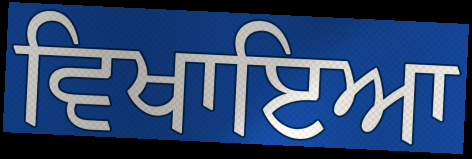
ਵਿਖਾਇਆ